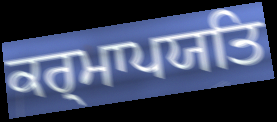
ਕਰ੍ਮਾਪਯਤਿ